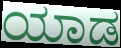
ಯಾಡ